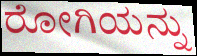
ರೋಗಿಯನ್ನು